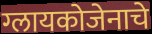
ग्लायकोजेनाचे